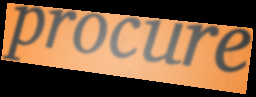
procure